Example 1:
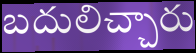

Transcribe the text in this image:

బదులిచ్చారు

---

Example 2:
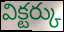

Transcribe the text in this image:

విక్టర్కు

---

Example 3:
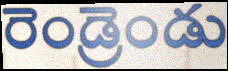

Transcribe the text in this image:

రెండ్రెండు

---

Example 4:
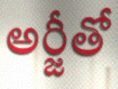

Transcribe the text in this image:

అర్జీతో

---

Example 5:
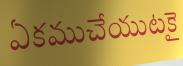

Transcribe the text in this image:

ఏకముచేయుటకై